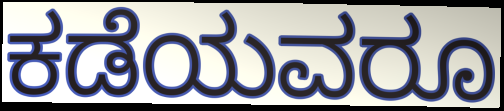
ಕಡೆಯವರೂ